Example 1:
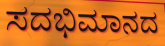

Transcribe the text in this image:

ಸದಭಿಮಾನದ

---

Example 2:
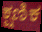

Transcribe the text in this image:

ಕ್ಷಣಿಕ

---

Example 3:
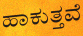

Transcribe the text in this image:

ಹಾಕುತ್ತವೆ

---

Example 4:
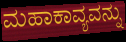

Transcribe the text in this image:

ಮಹಾಕಾವ್ಯವನ್ನು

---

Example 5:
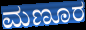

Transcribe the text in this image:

ಮಣೂರ